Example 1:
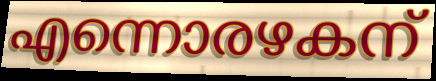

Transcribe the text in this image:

എന്നൊരഴകന്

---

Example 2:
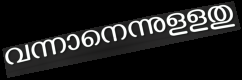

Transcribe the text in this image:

വന്നാനെന്നുളളതു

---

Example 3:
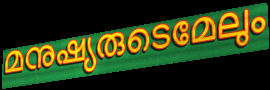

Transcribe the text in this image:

മനുഷ്യരുടെമേലും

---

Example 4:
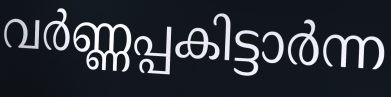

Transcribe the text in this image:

വർണ്ണപ്പകിട്ടാർന്ന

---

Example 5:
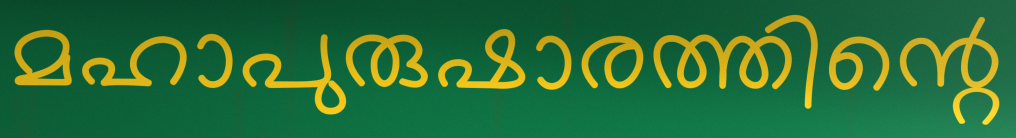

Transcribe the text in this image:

മഹാപുരുഷാരത്തിന്റെ